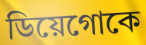
ডিয়েগোকে